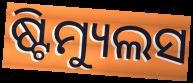
ଷ୍ଟିମ୍ୟୁଲସ